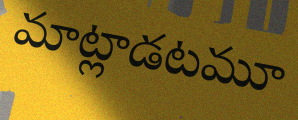
మాట్లాడటమూ